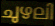
ചുഴലി